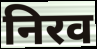
निरव